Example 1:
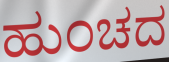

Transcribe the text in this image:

ಹುಂಚದ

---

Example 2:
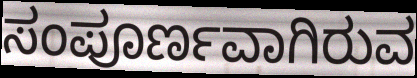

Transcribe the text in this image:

ಸಂಪೂರ್ಣವಾಗಿರುವ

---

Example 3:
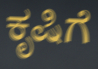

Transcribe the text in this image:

ಕೃಷಿಗೆ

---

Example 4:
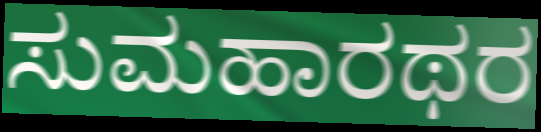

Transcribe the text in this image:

ಸುಮಹಾರಥರ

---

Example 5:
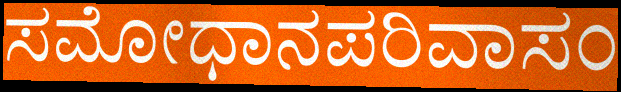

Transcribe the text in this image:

ಸಮೋಧಾನಪರಿವಾಸಂ